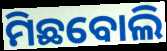
ମିଛବୋଲି